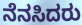
ನೆನಸಿದರು